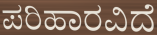
ಪರಿಹಾರವಿದೆ